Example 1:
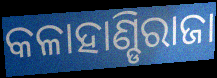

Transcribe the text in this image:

କଳାହାଣ୍ଡିରାଜା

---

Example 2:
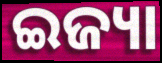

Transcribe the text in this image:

ଇଜ୍ୟା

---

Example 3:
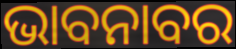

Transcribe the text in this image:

ଭାବନାବର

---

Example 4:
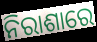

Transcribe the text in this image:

ନିରାଶାରେ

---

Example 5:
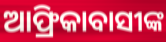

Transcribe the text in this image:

ଆଫ୍ରିକାବାସୀଙ୍କ